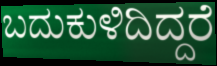
ಬದುಕುಳಿದಿದ್ದರೆ